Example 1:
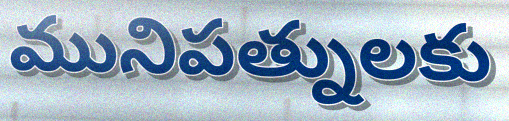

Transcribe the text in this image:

మునిపత్నులకు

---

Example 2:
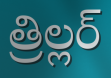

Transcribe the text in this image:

త్రిల్లర్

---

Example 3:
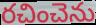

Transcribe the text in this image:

రచించెను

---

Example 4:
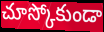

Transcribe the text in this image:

చూస్కోకుండా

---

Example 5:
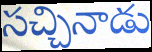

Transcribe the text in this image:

సచ్చినాడు